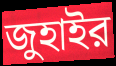
জুহাইর